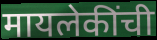
मायलेकींची